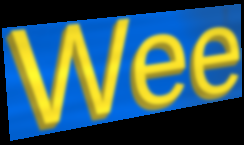
Wee